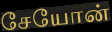
சேயோன்